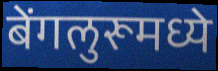
बेंगलुरूमध्ये